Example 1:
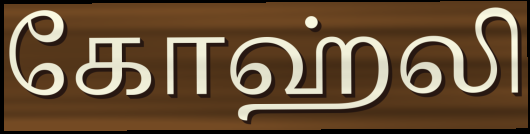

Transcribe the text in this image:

கோஹ்லி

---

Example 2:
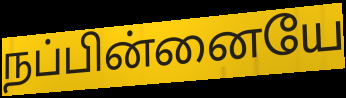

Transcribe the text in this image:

நப்பின்னையே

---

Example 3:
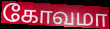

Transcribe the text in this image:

கோவமா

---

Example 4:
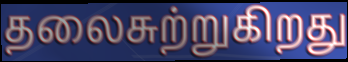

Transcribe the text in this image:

தலைசுற்றுகிறது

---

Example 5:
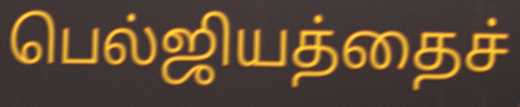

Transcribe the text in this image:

பெல்ஜியத்தைச்